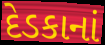
દેડકાનાં